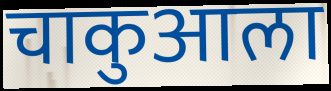
चाकुआला